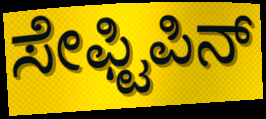
ಸೇಫ್ಟಿಪಿನ್